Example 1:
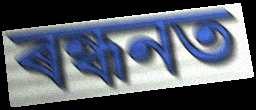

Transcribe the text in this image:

ৰন্ধনত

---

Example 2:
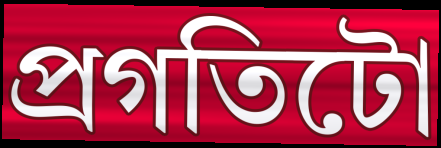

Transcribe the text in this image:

প্ৰগতিটো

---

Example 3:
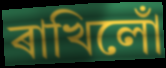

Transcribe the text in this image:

ৰাখিলোঁ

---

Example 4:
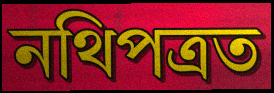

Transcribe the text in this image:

নথিপত্ৰত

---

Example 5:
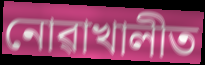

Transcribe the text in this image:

নোৱাখালীত